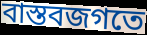
বাস্তবজগতে